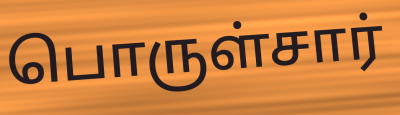
பொருள்சார்